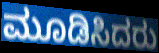
ಮೂಡಿಸಿದರು